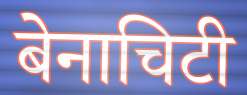
बेनाचिटी